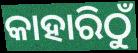
କାହାରିଠୁଁ